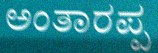
ಅಂತಾರಪ್ಪ